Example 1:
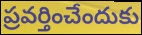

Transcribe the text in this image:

ప్రవర్తించేందుకు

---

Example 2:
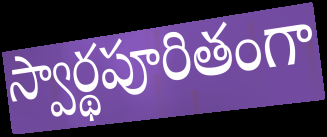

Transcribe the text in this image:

స్వార్థపూరితంగా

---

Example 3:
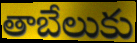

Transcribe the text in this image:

తాబేలుకు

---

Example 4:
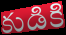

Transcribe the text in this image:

కుడికి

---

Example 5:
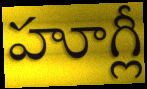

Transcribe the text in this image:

హూగ్లీ